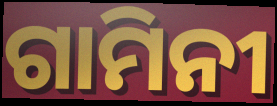
ଗାମିନୀ